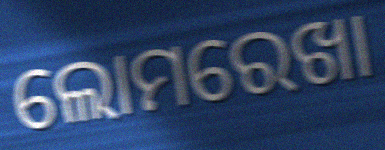
ଲୋମରେଖା